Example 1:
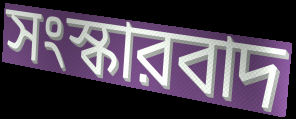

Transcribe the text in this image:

সংস্কারবাদ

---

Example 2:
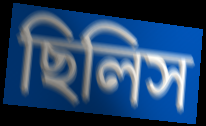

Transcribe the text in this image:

ছিলিস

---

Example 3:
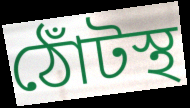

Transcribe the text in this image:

ঠোঁটস্থ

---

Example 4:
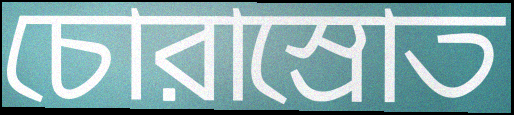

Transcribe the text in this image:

চোরাস্রোত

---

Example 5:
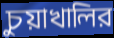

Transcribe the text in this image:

চুয়াখালির